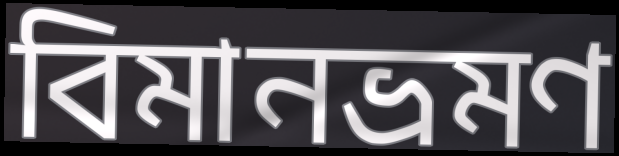
বিমানভ্রমণ